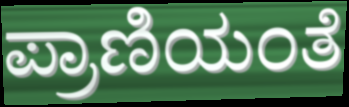
ಪ್ರಾಣಿಯಂತೆ